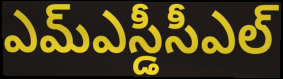
ఎమ్ఎస్డీసీఎల్